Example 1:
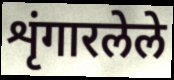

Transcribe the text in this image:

शृंगारलेले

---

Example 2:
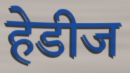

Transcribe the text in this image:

हेडीज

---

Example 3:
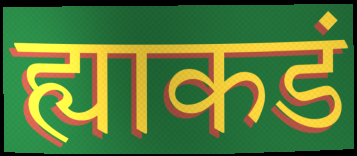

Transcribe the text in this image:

ह्याकडं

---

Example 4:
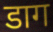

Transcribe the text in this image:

डाग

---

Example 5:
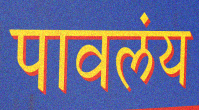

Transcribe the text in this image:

पावलंय